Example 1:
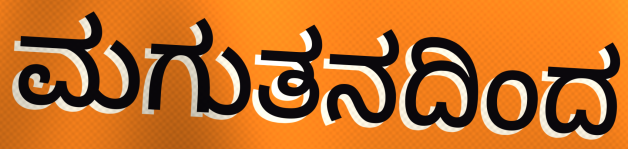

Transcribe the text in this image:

ಮಗುತನದಿಂದ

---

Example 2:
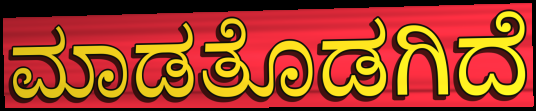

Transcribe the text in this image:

ಮಾಡತೊಡಗಿದೆ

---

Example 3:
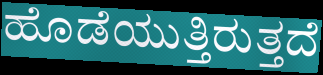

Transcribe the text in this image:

ಹೊಡೆಯುತ್ತಿರುತ್ತದೆ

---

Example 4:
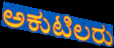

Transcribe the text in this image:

ಅಕುಟಿಲರು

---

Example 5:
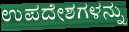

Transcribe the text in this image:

ಉಪದೇಶಗಳನ್ನು